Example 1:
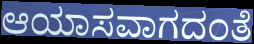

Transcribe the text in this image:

ಆಯಾಸವಾಗದಂತೆ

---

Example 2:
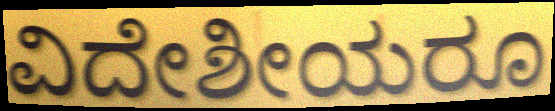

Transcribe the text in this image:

ವಿದೇಶೀಯರೂ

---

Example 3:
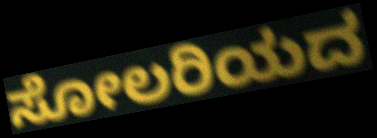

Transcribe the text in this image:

ಸೋಲರಿಯದ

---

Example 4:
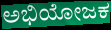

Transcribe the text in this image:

ಅಭಿಯೋಜಕ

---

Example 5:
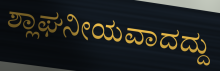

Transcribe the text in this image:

ಶ್ಲಾಘನೀಯವಾದದ್ದು